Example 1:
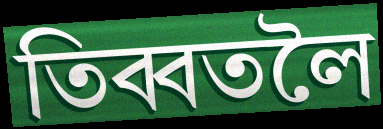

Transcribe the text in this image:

তিব্বতলৈ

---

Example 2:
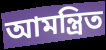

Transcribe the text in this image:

আমন্ত্ৰিত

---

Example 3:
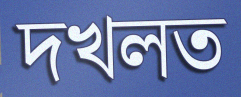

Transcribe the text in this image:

দখলত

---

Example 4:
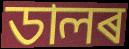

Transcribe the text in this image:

ডালৰ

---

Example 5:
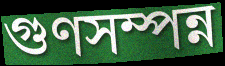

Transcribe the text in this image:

গুণসম্পন্ন